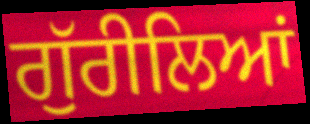
ਗੁੱਰੀਲਿਆਂ